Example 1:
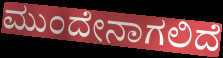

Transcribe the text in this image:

ಮುಂದೇನಾಗಲಿದೆ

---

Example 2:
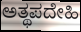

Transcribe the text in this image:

ಅತ್ಥಪದೇಹಿ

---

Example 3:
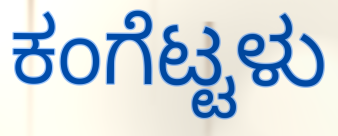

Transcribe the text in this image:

ಕಂಗೆಟ್ಟಳು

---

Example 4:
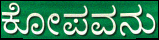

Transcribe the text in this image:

ಕೋಪವನು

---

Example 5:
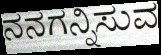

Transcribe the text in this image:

ನನಗನ್ನಿಸುವ